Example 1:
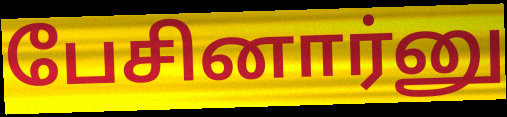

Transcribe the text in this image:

பேசினார்னு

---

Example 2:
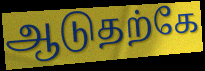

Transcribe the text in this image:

ஆடுதற்கே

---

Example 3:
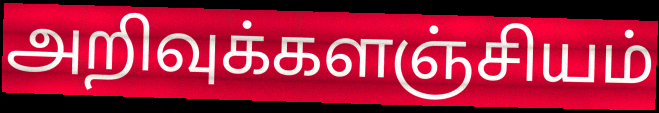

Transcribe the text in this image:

அறிவுக்களஞ்சியம்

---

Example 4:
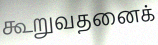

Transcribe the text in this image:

கூறுவதனைக்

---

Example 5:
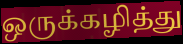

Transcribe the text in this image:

ஒருக்கழித்து